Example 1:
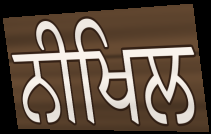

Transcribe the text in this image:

ਨੀਖਿਲ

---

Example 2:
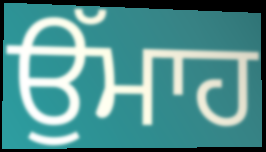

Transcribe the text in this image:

ਉੱਮਾਹ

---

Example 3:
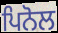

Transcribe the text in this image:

ਪਿਨੋਲ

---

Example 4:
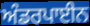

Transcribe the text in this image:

ਅੰਡਰਪਾਈਨ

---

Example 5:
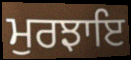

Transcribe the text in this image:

ਮੁਰਝਾਇ